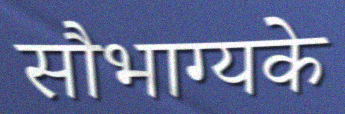
सौभाग्यके